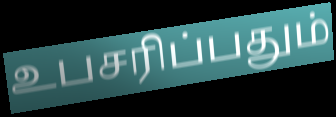
உபசரிப்பதும்